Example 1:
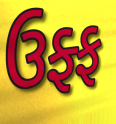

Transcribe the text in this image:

ઉફ્ફ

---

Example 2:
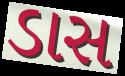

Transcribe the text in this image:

ડાસ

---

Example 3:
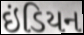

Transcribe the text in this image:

ઇંડિયન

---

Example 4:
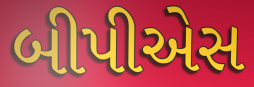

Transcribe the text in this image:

બીપીએસ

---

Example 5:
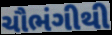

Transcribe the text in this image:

ચૌભંગીથી